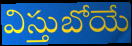
విస్తుబోయే